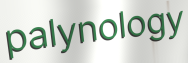
palynology